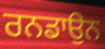
ਰਨਡਾਉਨ